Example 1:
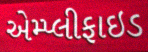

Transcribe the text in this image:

એમ્પ્લીફાઇડ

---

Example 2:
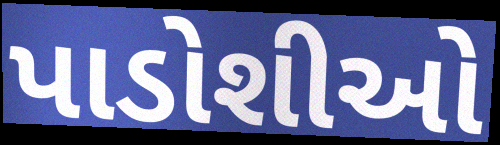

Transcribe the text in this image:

પાડોશીઓ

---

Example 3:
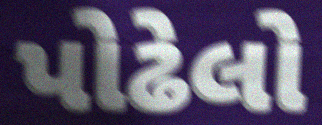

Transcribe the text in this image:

પોઢેલો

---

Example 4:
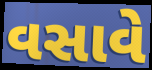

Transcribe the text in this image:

વસાવે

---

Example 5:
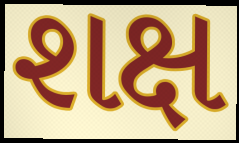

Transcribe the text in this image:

શક્ષ